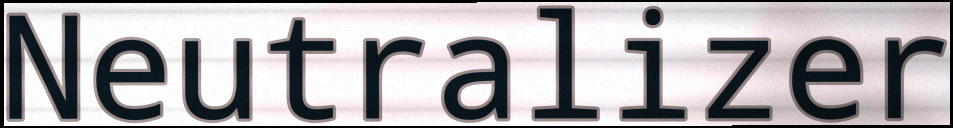
Neutralizer